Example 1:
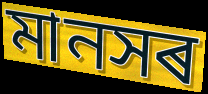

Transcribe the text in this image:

মানসৰ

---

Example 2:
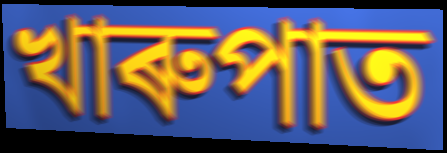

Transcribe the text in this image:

খাৰুপাত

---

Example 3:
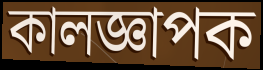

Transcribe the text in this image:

কালজ্ঞাপক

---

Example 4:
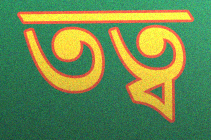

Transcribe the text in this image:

তত্ব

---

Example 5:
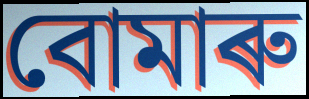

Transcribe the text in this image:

বোমাৰু